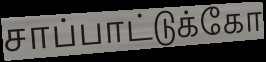
சாப்பாட்டுக்கோ